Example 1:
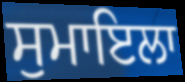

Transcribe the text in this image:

ਸੁਮਾਇਲਾ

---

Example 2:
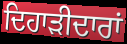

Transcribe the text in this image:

ਦਿਹਾੜੀਦਾਰਾਂ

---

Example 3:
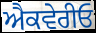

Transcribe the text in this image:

ਐਕਵੇਰੀਓ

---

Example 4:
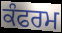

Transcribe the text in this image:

ਕੰਫਰਮ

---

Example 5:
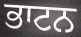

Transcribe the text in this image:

ਭਾਟਨ